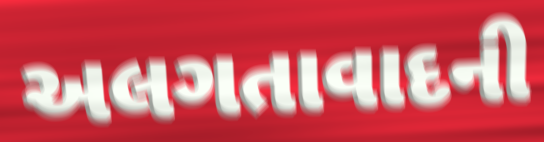
અલગતાવાદની